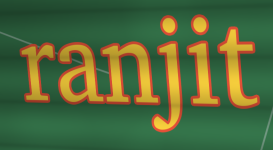
ranjit